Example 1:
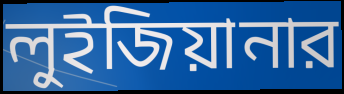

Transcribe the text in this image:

লুইজিয়ানার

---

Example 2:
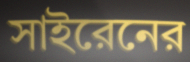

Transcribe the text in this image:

সাইরেনের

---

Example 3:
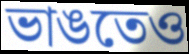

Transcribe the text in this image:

ভাঙতেও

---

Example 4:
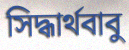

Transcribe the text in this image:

সিদ্ধার্থবাবু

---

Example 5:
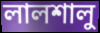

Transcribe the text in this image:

লালশালু